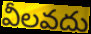
వీలవదు